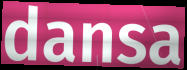
dansa